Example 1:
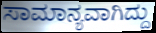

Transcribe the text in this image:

ಸಾಮಾನ್ಯವಾಗಿದ್ದು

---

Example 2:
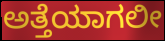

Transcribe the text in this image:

ಅತ್ತೆಯಾಗಲೀ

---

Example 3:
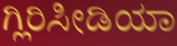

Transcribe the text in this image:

ಗ್ಲಿರಿಸೀಡಿಯಾ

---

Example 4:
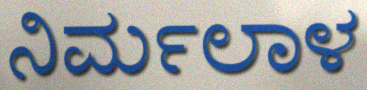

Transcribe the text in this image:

ನಿರ್ಮಲಾಳ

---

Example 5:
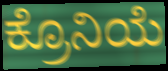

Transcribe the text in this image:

ಕ್ರೊನಿಯೆ